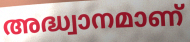
അദ്ധ്വാനമാണ്